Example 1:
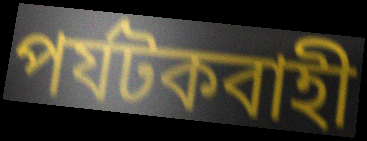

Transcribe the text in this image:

পর্যটকবাহী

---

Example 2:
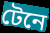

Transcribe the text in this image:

টেনে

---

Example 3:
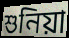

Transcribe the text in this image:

শুনিয়া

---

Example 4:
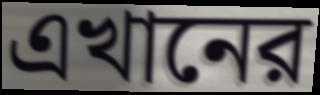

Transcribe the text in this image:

এখানের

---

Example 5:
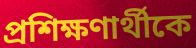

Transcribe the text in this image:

প্রশিক্ষণার্থীকে